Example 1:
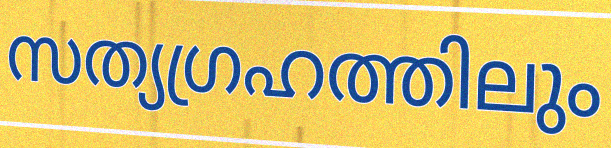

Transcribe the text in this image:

സത്യഗ്രഹത്തിലും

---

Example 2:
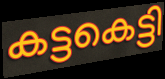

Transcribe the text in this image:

കട്ടകെട്ടി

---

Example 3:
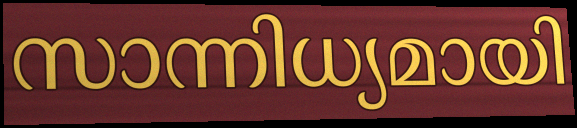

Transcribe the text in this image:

സാന്നിധ്യമായി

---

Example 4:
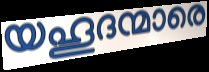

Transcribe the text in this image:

യഹൂദന്മാരെ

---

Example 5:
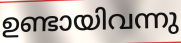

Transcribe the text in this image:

ഉണ്ടായിവന്നു